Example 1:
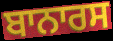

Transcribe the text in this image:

ਬਾਨਾਰਸ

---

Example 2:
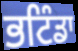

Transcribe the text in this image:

ਭਟਿੰਡਾ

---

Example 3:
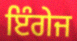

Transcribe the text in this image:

ਇੰਗੇਜ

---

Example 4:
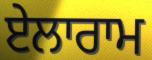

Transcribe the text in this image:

ਏਲਾਰਾਮ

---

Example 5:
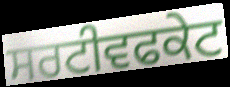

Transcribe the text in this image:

ਸਰਟੀਵਫਕੇਟ